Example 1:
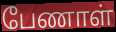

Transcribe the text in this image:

பேணாள்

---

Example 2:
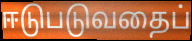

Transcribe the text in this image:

ஈடுபடுவதைப்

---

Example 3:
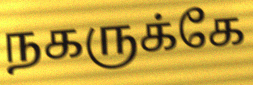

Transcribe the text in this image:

நகருக்கே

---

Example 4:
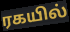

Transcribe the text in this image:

ரகயில்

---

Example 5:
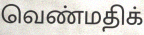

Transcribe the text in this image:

வெண்மதிக்